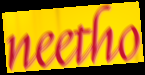
neetho